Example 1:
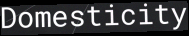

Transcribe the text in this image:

Domesticity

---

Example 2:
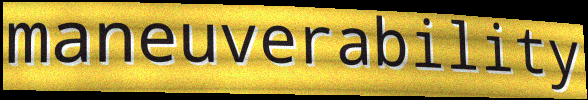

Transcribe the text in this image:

maneuverability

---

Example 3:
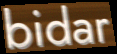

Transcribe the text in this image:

bidar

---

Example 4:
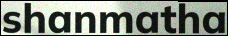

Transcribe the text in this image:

shanmatha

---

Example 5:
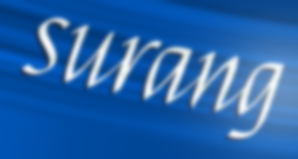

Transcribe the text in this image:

surang